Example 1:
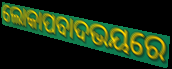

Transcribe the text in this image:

ଲୋକାପବାଦଭୟରେ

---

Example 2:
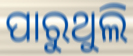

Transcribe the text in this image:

ପାରୁଥୁଲି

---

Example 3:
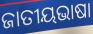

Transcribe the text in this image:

ଜାତୀୟଭାଷା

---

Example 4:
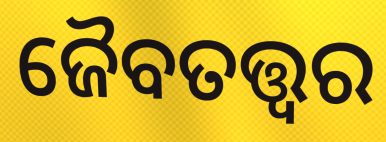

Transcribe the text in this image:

ଜୈବତତ୍ତ୍ୱର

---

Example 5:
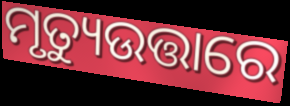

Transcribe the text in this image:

ମୃତ୍ୟୁଉତ୍ତାରେ